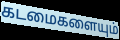
கடமைகளையும்